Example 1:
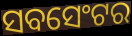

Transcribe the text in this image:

ସବସେଂଟର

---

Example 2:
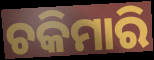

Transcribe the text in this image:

ଚକିମାରି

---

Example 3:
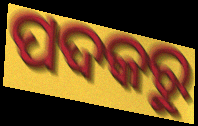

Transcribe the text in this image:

ପଦକରୁ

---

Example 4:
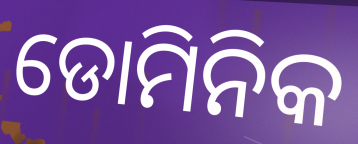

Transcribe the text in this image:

ଡୋମିନିକ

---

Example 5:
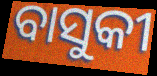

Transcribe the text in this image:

ବାସୁକୀ